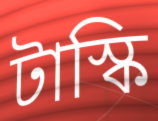
টাস্কি